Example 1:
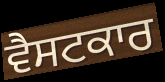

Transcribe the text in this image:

ਵੈਸਟਕਾਰ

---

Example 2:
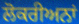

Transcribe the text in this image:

ਲੋਕਰੀਅਨਾਂ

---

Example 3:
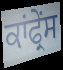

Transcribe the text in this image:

ਕਾਂਫ੍ਰੇਂਸ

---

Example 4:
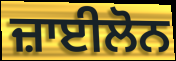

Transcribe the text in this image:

ਜ਼ਾਈਲੋਨ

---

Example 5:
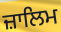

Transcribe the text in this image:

ਜ਼ਾਲਿਮ